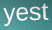
yest